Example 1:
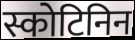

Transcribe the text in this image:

स्कोटिनिन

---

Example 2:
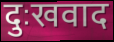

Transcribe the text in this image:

दुःखवाद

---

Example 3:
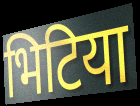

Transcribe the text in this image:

भिटिया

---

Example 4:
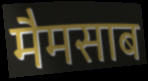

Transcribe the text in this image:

मैमसाब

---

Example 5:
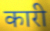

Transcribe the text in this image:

कारी